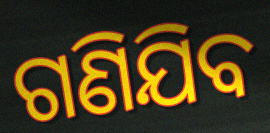
ଗଣିଯିବ